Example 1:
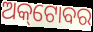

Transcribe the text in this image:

ଅକ୍‌ଟୋବର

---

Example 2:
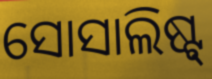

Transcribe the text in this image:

ସୋସାଲିଷ୍ଟ୍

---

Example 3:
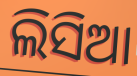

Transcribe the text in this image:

ଲିସିଆ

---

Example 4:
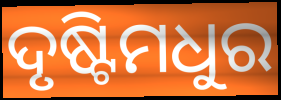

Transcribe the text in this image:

ଦୃଷ୍ଟିମଧୁର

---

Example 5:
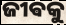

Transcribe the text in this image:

ଜୀଵକୁ